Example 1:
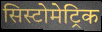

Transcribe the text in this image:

सिस्टोमेट्रिक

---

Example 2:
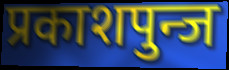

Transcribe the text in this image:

प्रकाशपुन्ज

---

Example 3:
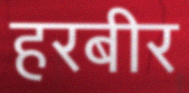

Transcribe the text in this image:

हरबीर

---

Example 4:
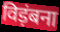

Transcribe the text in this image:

विड़ंबना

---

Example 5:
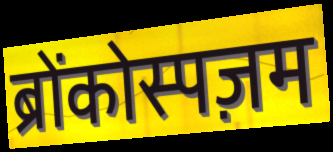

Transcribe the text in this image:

ब्रोंकोस्पज़म